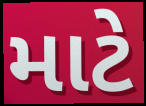
માટે